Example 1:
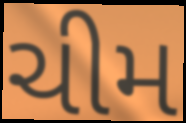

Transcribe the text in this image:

ચીમ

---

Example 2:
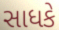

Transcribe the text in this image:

સાધકે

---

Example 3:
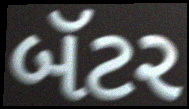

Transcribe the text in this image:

બૅટર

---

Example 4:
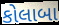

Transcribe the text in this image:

કોલાબા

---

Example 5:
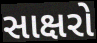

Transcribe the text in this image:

સાક્ષરો